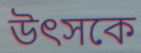
উৎসকে